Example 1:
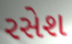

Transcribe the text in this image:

રસેશ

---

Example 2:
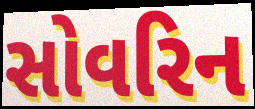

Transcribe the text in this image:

સોવરિન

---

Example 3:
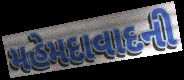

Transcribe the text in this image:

મહેમદાવાદની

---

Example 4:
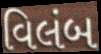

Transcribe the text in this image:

વિલંબ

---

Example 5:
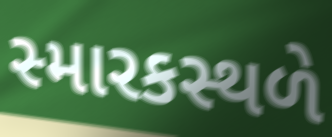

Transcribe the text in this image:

સ્મારકસ્થળે